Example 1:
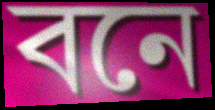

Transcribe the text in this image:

বনে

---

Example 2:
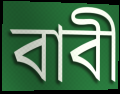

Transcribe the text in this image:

বাবী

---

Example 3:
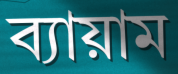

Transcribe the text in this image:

ব্যায়াম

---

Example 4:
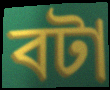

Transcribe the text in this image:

বটা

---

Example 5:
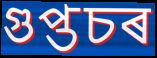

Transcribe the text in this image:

গুপ্তচৰ